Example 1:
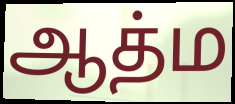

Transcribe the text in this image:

ஆத்ம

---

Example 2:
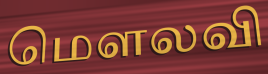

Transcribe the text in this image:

மௌலவி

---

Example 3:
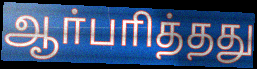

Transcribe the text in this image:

ஆர்பரித்தது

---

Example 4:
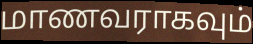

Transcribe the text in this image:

மாணவராகவும்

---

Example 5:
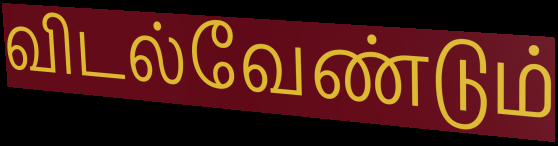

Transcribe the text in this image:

விடல்வேண்டும்